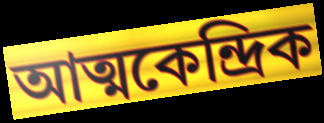
আত্মকেন্দ্রিক